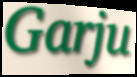
Garju